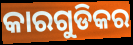
କାରଗୁଡିକର